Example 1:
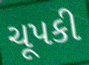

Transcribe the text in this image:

ચૂપકી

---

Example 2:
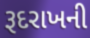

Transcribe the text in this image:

રૂદરાખની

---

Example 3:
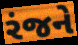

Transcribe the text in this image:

રંજને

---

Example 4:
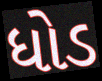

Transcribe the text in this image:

ધોડ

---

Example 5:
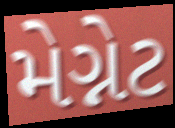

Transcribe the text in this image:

મેગ્નેટ